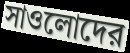
সাওলোদের